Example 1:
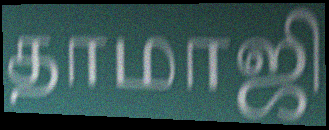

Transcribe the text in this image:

தாமாஜி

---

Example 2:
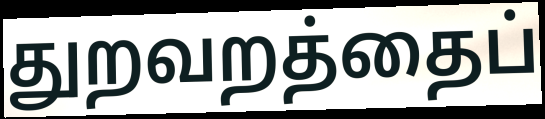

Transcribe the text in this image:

துறவறத்தைப்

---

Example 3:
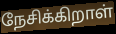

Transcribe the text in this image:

நேசிக்கிறாள்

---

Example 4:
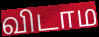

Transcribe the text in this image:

விடாம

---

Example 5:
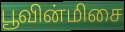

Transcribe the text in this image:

பூவின்மிசை